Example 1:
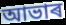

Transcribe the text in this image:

আভাৰ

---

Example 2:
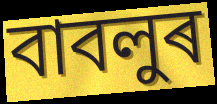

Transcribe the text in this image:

বাবলুৰ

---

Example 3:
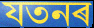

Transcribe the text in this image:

যতনৰ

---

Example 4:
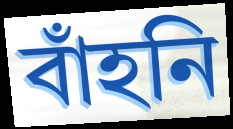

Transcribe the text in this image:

বাঁহনি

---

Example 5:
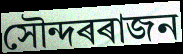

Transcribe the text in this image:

সৌন্দৰৰাজন